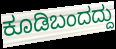
ಕೂಡಿಬಂದದ್ದು